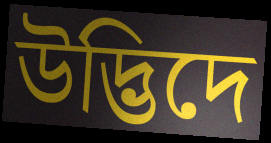
উদ্ভিদে